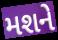
મશને